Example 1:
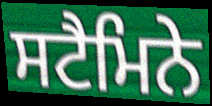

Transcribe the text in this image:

ਸਟੈਮਿਨੇ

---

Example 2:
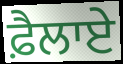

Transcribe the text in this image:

ਫ਼ੈਲਾਏ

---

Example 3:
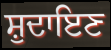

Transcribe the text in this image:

ਸ਼ੁਦਾਇਣ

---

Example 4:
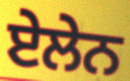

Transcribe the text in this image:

ਏਲੇਨ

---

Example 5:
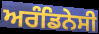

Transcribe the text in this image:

ਅਰੰਡਿਨੇਸੀ